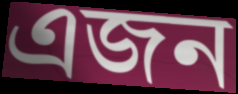
এজন